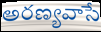
అరణ్యవాసే